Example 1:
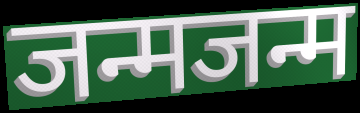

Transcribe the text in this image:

जन्मजन्म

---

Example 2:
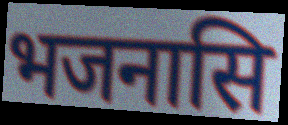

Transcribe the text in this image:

भजनासि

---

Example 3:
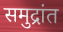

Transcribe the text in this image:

समुद्रांत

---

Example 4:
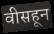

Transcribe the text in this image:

वीसहून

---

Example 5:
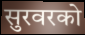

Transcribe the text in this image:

सुरवरको